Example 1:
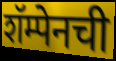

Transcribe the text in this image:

शॅम्पेनची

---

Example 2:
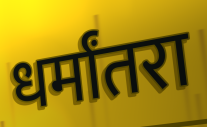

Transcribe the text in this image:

धर्मांतरा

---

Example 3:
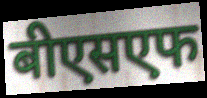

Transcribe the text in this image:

बीएसएफ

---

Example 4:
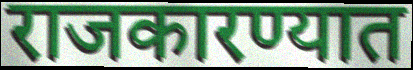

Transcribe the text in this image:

राजकारण्यात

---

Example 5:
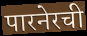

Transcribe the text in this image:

पारनेरची